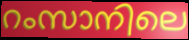
റംസാനിലെ